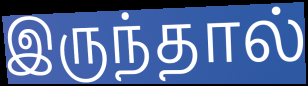
இருந்தால்